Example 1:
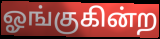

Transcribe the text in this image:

ஓங்குகின்ற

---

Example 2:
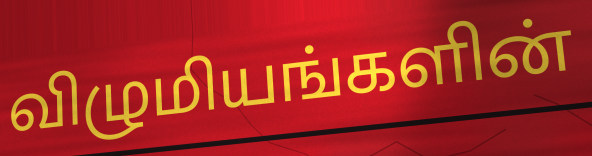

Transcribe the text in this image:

விழுமியங்களின்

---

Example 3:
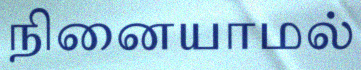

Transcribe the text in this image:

நினையாமல்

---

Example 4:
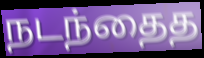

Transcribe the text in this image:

நடந்தைத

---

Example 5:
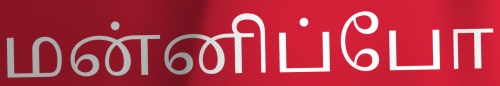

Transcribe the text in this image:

மன்னிப்போ